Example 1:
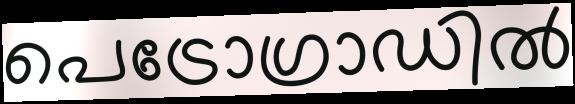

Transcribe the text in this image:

പെട്രോഗ്രാഡിൽ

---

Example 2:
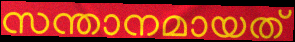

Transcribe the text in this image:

സന്താനമായത്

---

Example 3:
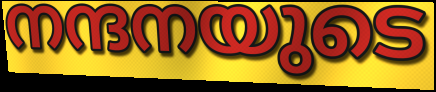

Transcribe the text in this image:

നന്ദനയുടെ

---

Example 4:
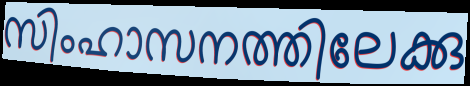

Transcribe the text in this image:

സിംഹാസനത്തിലേക്കു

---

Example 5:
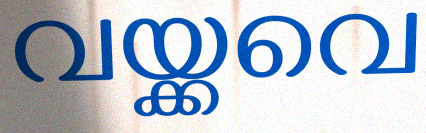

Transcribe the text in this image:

വയ്ക്കവെ